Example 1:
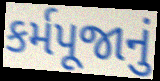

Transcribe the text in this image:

કર્મપૂજાનું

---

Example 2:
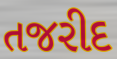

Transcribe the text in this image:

તજરીદ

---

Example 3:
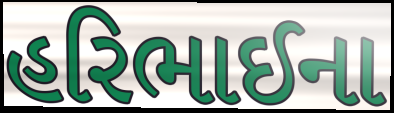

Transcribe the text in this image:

હરિભાઈના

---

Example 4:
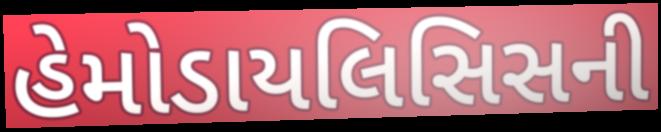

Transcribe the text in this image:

હેમોડાયલિસિસની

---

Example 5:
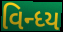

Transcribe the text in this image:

વિન્ધ્ય